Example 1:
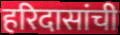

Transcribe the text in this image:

हरिदासांची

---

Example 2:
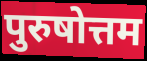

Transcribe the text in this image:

पुरुषोत्तम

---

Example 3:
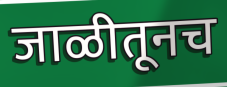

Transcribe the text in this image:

जाळीतूनच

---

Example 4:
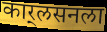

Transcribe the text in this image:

कार्लसनला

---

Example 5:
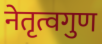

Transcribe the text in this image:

नेतृत्वगुण